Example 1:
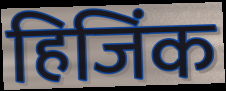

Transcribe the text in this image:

हिजिंक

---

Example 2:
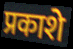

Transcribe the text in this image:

प्रकाशे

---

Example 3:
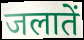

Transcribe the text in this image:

जलातें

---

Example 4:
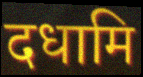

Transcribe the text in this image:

दधामि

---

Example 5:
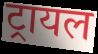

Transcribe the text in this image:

ट्रायल